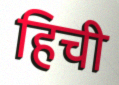
हिची